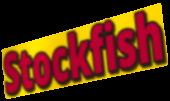
Stockfish